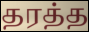
தரத்த